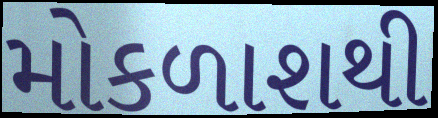
મોકળાશથી